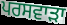
ਪਰਸਵਾੜਾ